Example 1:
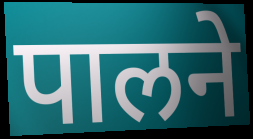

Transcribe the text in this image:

पालने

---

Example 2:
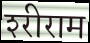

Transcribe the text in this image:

श्रीराम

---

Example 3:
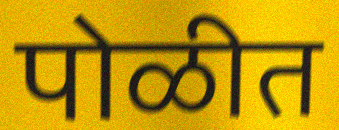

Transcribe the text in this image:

पोळीत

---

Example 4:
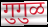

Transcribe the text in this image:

गुगुळ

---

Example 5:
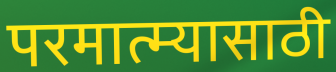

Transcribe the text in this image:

परमात्म्यासाठी